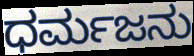
ಧರ್ಮಜನು